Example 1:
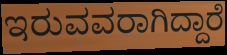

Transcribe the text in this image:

ಇರುವವರಾಗಿದ್ದಾರೆ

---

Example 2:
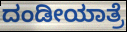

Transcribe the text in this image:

ದಂಡೀಯಾತ್ರೆ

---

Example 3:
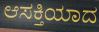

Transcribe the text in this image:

ಆಸಕ್ತಿಯಾದ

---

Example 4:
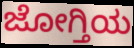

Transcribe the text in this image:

ಜೋಗ್ತಿಯ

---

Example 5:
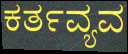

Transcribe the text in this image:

ಕರ್ತವ್ಯವ